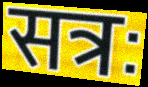
सत्रः